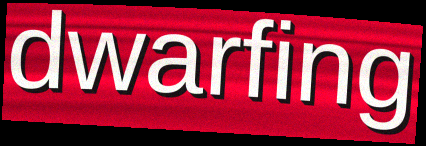
dwarfing